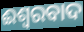
ଈଶ୍ୱରବାଦ